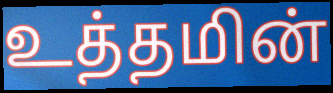
உத்தமின்